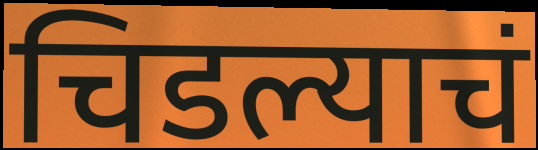
चिडल्याचं